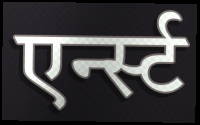
एर्न्स्ट